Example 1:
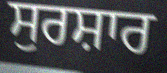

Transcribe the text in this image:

ਸੁਰਸ਼ਾਰ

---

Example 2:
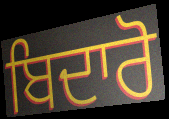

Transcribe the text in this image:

ਬਿਦਾਰੋ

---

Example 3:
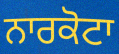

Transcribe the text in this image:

ਨਾਰਕੋਟਾ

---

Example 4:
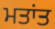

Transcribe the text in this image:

ਮਤਾਂਤ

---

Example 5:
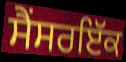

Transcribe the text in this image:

ਸੈਂਸਰਇੱਕ